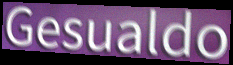
Gesualdo